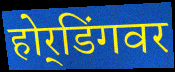
होर्डिंगवर